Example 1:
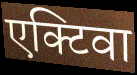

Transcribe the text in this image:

एक्टिवा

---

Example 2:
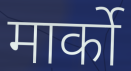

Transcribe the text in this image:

मार्को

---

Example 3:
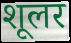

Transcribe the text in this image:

शूलर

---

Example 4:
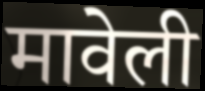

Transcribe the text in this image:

मावेली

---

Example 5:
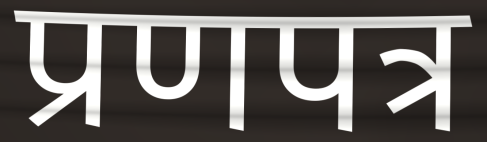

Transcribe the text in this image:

प्रणपत्र